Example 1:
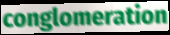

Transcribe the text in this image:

conglomeration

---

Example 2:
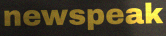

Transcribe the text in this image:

newspeak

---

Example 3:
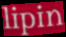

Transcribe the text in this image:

lipin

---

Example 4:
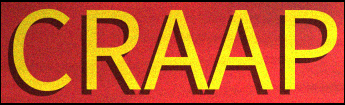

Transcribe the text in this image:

CRAAP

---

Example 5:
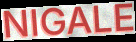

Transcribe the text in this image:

NIGALE